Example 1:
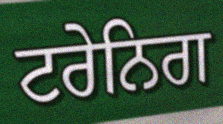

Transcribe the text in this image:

ਟਰੇਨਿਗ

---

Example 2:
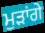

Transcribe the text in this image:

ਮੁੜਾਂਗੇ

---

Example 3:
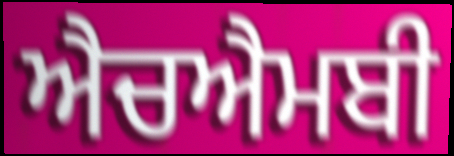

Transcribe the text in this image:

ਐਚਐਮਬੀ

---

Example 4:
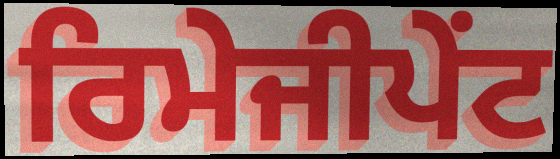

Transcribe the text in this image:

ਰਿਮੇਜੀਪੇਂਟ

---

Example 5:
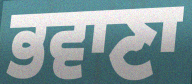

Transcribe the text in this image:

ਭਵਾਣਾ